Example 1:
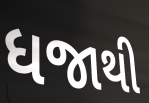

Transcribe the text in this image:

ધજાથી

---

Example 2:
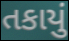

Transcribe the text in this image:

તકાયું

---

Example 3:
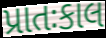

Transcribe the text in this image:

પ્રાતઃકાલ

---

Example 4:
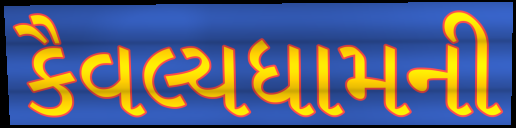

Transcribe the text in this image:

કૈવલ્યધામની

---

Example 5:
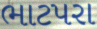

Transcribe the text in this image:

ભાટપરા